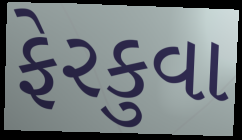
ફેરકુવા